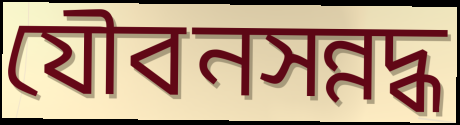
যৌবনসন্নদ্ধ